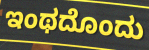
ಇಂಥದೊಂದು